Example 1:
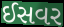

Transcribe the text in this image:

ઈસવર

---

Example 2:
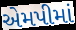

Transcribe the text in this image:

એમપીમાં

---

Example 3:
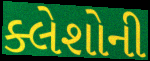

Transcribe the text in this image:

ક્લેશોની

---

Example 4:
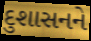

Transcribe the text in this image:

દુશાસનને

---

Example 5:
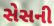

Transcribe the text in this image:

સેસની